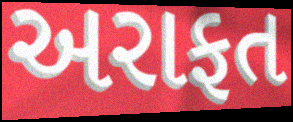
અરાફત